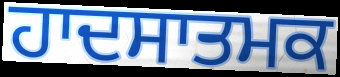
ਹਾਦਸਾਤਮਕ